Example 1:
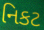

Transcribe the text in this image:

નિકટ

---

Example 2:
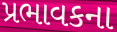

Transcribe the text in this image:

પ્રભાવકના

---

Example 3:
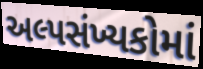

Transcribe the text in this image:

અલ્પસંખ્યકોમાં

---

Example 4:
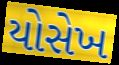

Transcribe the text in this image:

યોસેખ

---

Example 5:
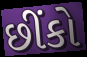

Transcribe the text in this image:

છીંકો